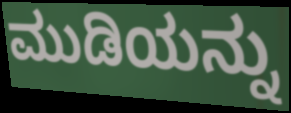
ಮುಡಿಯನ್ನು